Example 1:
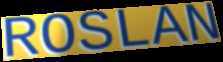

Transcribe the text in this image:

ROSLAN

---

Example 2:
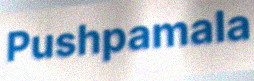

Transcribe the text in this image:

Pushpamala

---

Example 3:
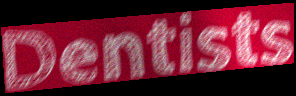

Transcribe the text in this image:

Dentists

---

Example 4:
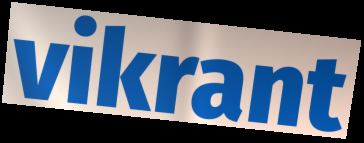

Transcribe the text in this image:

vikrant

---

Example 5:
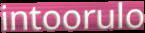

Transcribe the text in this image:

intoorulo